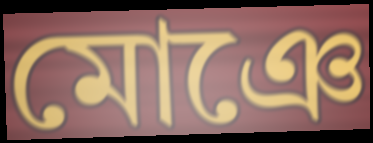
মোঞে